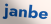
janbe